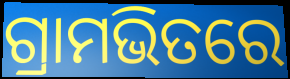
ଗ୍ରାମଭିତରେ